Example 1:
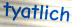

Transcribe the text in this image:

tyatlich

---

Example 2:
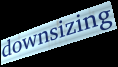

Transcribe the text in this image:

downsizing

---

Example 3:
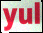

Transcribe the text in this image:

yul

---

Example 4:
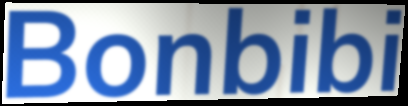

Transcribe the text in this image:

Bonbibi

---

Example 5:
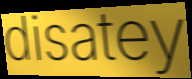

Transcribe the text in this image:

disatey